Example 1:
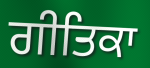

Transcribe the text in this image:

ਗੀਤਿਕਾ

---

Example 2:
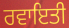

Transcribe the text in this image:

ਰਵਾਇਤੀ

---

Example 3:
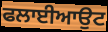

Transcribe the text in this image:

ਫਲਾਈਆਉਟ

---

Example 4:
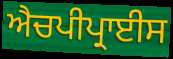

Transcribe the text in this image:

ਐਚਪੀਪ੍ਰਾਈਸ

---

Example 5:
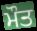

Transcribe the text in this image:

ਮੌਤ